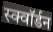
स्क्वॉर्डन